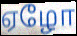
ஏழோ